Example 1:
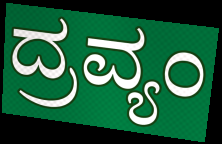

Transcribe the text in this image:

ದ್ರವ್ಯಂ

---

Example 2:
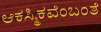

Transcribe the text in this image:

ಆಕಸ್ಮಿಕವೆಂಬಂತೆ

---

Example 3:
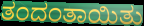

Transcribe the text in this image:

ತಂದಂತಾಯಿತು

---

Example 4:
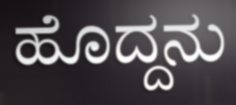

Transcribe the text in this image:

ಹೊದ್ದನು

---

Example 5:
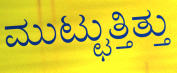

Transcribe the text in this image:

ಮುಟ್ಟುತ್ತಿತ್ತು